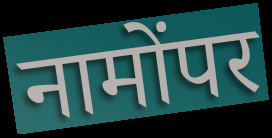
नामोंपर